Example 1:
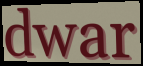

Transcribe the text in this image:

dwar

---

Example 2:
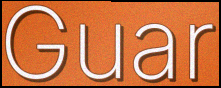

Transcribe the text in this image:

Guar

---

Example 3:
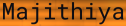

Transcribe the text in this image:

Majithiya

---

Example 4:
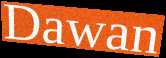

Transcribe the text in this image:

Dawan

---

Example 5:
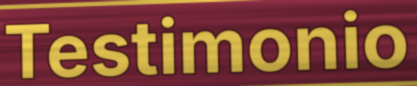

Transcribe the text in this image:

Testimonio